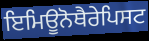
ਇਮਿਊਨੋਥੈਰੇਪਿਸਟ